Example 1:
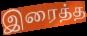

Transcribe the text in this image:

இரைத்த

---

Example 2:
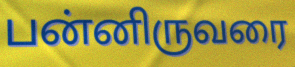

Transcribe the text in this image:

பன்னிருவரை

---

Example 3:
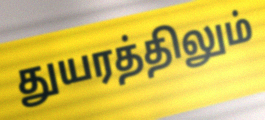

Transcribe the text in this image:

துயரத்திலும்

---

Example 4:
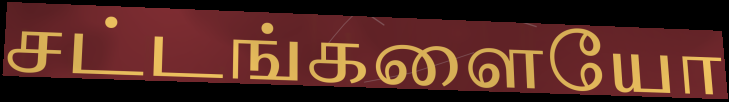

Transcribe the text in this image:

சட்டங்களையோ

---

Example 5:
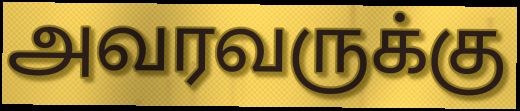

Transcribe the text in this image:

அவரவருக்கு